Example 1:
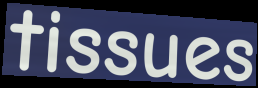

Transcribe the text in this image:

tissues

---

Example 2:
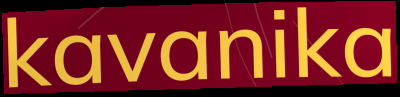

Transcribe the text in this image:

kavanika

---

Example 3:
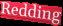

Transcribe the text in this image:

Redding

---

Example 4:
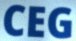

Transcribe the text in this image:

CEG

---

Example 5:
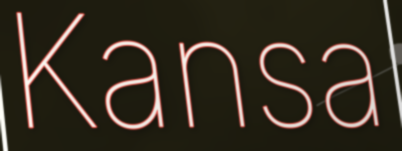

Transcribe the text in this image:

Kansa